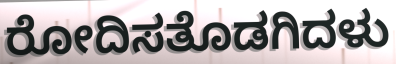
ರೋದಿಸತೊಡಗಿದಳು